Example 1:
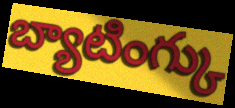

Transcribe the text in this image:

బ్యాటింగ్కు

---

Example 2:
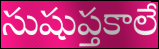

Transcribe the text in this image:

సుషుప్తకాలే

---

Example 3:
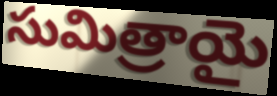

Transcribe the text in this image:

సుమిత్రాయై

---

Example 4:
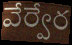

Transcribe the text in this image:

వేర్వేర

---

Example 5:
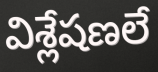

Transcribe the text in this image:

విశ్లేషణలే